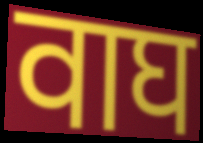
वाघ